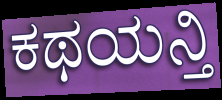
ಕಥಯನ್ತಿ